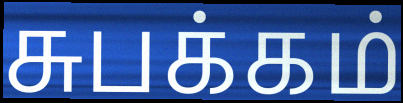
சுபக்கம்